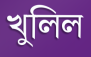
খুলিল